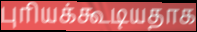
புரியக்கூடியதாக